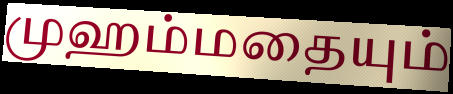
முஹம்மதையும்